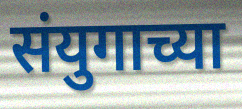
संयुगाच्या